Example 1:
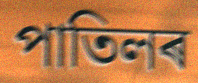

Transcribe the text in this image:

পাতিলৰ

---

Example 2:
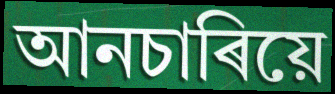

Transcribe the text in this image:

আনচাৰিয়ে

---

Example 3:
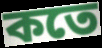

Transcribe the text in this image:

কতে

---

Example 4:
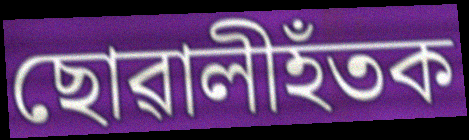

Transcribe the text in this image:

ছোৱালীহঁতক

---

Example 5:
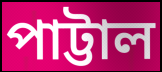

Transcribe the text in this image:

পাট্টাল